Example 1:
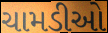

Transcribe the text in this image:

ચામડીઓ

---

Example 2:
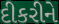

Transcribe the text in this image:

દીકરીને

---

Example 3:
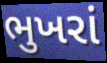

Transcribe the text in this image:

ભુખરાં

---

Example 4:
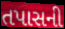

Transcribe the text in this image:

તપાસની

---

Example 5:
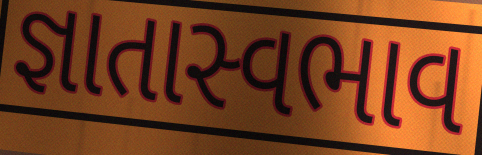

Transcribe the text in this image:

જ્ઞાતાસ્વભાવ